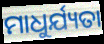
ମାଧୁର୍ଯ୍ୟତା